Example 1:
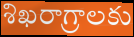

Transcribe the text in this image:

శిఖరాగ్రాలకు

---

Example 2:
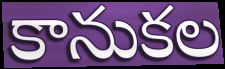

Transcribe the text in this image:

కానుకల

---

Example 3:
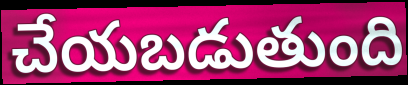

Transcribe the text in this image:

చేయబడుతుంది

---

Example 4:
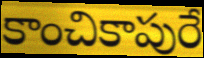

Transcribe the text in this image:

కాంచికాపురే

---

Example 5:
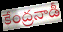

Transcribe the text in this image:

కేంద్రనాడీ